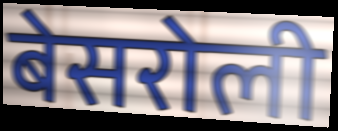
बेसरोली